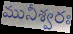
మునీశ్వరః